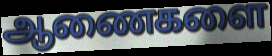
ஆணைகளை